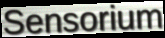
Sensorium